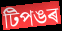
টিপঙৰ